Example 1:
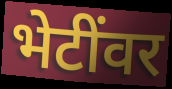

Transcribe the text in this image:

भेटींवर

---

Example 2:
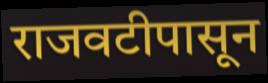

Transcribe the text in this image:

राजवटीपासून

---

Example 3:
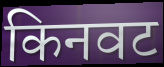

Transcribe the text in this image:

किनवट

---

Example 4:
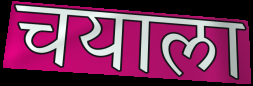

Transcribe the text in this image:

चयाला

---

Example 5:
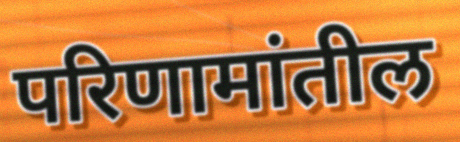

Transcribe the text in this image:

परिणामांतील